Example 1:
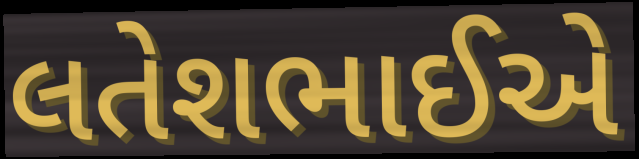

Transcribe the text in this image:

લતેશભાઈએ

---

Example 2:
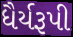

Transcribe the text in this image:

ધૈર્યરૂપી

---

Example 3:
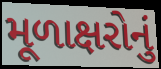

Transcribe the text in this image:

મૂળાક્ષરોનું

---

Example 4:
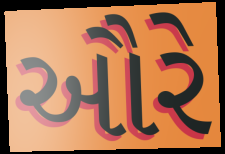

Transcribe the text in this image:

ઔરે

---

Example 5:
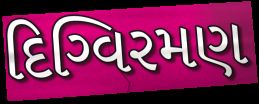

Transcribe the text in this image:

દિગ્વિરમણ